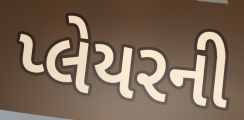
પ્લેયરની